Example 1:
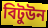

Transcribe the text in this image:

বিটুউন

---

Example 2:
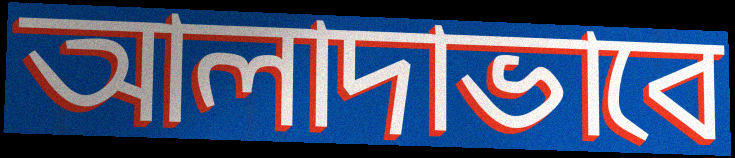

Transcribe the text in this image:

আলাদাভাবে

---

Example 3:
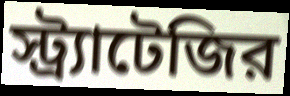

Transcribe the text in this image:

স্ট্র্যাটেজির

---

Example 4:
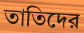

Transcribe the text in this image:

তাতিদের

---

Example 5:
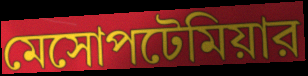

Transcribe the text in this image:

মেসোপটেমিয়ার